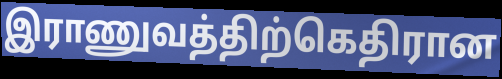
இராணுவத்திற்கெதிரான